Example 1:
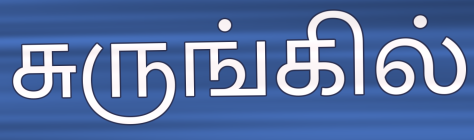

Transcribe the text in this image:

சுருங்கில்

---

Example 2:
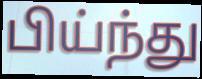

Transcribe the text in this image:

பிய்ந்து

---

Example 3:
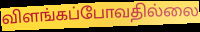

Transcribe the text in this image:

விளங்கப்போவதில்லை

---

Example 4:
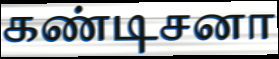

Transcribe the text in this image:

கண்டிசனா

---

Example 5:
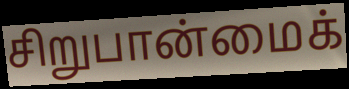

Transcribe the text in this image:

சிறுபான்மைக்